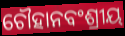
ଚୌହାନବଂଶ୍ରୀୟ